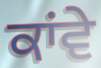
ਕਾਂਵੇ